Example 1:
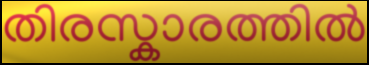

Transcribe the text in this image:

തിരസ്കാരത്തിൽ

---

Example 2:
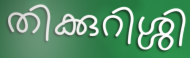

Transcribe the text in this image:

തിക്കുറിശ്ശി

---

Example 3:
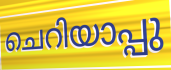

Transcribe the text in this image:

ചെറിയാപ്പു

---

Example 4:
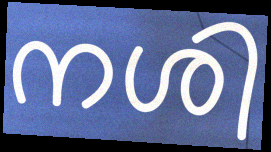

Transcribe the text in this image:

നശി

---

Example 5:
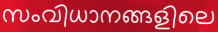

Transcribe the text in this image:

സംവിധാനങ്ങളിലെ